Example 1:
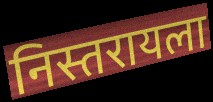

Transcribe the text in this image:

निस्तरायला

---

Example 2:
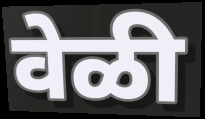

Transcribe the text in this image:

वेळी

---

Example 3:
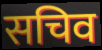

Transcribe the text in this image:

सचिव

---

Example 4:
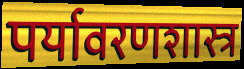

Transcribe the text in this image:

पर्यावरणशास्त्र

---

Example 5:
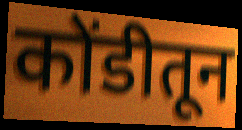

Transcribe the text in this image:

कोंडीतून